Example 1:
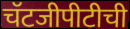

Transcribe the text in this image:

चॅटजीपीटीची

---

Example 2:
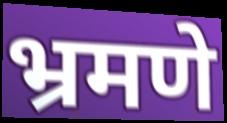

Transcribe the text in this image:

भ्रमणे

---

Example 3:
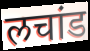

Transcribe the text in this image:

लचांड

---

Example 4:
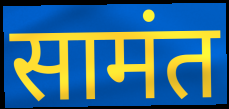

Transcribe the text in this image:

सामंत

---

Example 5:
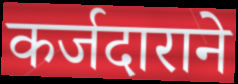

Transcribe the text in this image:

कर्जदाराने